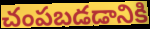
చంపబడడానికి